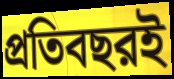
প্রতিবছরই